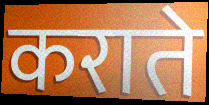
कराते